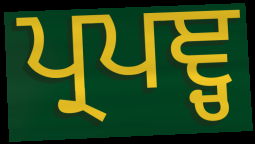
ਪ੍ਰਪਞ੍ਚ